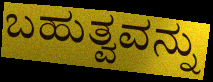
ಬಹುತ್ವವನ್ನು